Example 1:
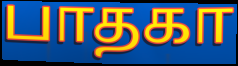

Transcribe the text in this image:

பாதகா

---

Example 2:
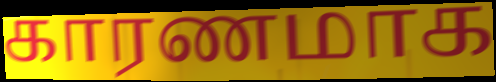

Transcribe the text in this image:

காரணமாக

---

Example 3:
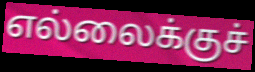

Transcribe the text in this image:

எல்லைக்குச்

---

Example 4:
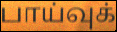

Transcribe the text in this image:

பாய்வுக்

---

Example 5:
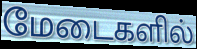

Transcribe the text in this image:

மேடைகளில்